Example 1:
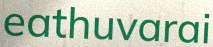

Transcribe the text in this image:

eathuvarai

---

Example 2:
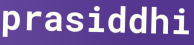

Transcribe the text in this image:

prasiddhi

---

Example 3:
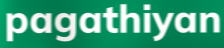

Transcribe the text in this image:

pagathiyan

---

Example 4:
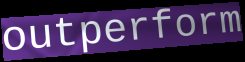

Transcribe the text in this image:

outperform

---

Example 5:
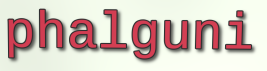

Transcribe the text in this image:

phalguni